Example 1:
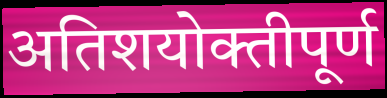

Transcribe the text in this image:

अतिशयोक्‍तीपूर्ण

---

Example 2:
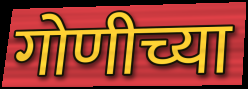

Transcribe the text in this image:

गोणीच्या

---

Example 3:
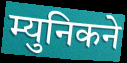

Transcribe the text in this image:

म्युनिकने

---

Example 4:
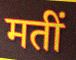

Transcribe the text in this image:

मतीं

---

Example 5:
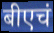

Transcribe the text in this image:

बीएचं